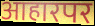
आहारपर